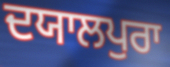
ਦਯਾਲਪੁਰਾ